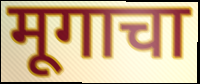
मूगाचा